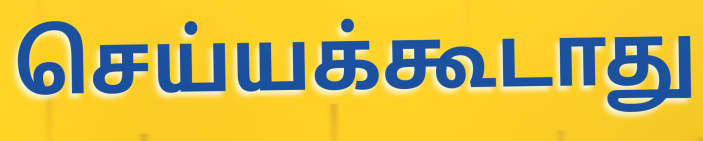
செய்யக்கூடாது